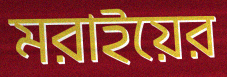
মরাইয়ের